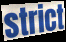
strict